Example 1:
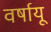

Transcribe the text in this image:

वर्षायू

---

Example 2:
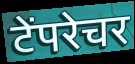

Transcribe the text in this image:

टेंपरेचर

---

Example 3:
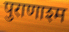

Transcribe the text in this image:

पुराणाश्म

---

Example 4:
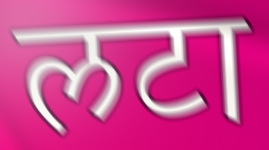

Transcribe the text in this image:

लटा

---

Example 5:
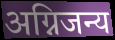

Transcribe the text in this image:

अग्निजन्य